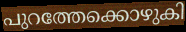
പുറത്തേക്കൊഴുകി